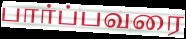
பார்ப்பவரை